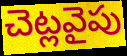
చెట్లవైపు